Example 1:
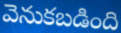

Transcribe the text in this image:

వెనుకబడింది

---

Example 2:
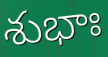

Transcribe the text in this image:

శుభాః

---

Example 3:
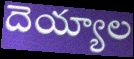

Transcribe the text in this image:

దెయ్యాల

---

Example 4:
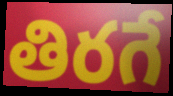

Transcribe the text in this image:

తిరగే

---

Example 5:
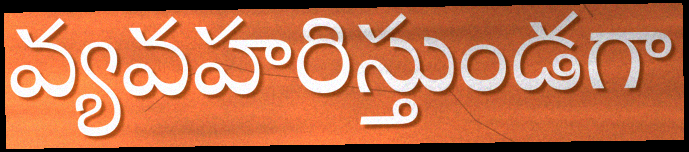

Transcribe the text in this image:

వ్యవహరిస్తుండగా